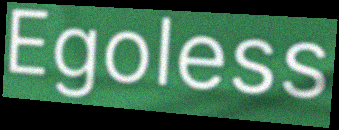
Egoless